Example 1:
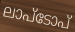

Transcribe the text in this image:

ലാപ്ടോപ്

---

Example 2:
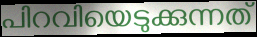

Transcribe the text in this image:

പിറവിയെടുക്കുന്നത്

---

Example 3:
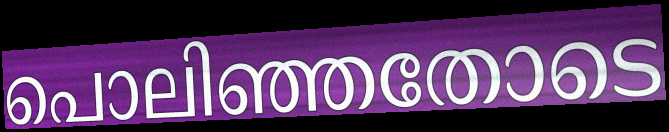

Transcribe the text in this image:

പൊലിഞ്ഞതോടെ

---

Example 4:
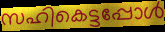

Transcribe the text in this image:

സഹികെട്ടപ്പോൾ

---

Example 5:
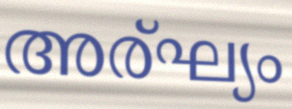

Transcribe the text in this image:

അര്ഘ്യം